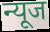
न्यूज